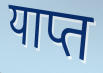
याप्त